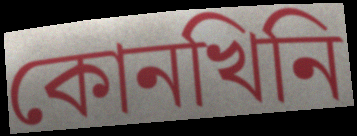
কোনখিনি